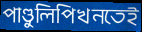
পাণ্ডুলিপিখনতেই